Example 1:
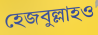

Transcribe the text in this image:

হেজবুল্লাহও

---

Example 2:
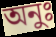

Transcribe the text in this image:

অনুঃ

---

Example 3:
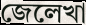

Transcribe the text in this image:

জেলেখা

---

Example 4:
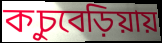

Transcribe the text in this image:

কচুবেড়িয়ায়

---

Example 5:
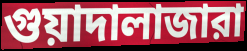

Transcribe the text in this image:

গুয়াদালাজারা